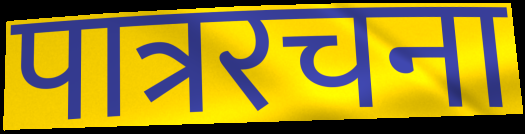
पात्ररचना